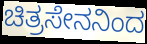
ಚಿತ್ರಸೇನನಿಂದ